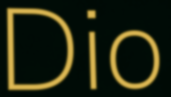
Dio